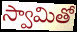
స్వామితో